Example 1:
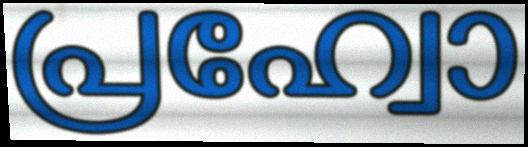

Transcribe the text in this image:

പ്രഹ്വോ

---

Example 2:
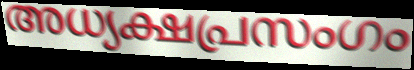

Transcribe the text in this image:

അധ്യക്ഷപ്രസംഗം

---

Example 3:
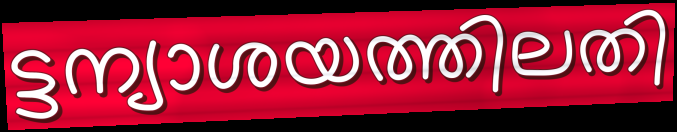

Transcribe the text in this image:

ട്ടന്യാശയത്തിലതി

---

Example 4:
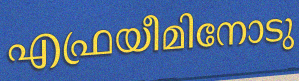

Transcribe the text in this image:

എഫ്രയീമിനോടു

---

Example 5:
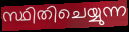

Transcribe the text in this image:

സ്ഥിതിചെയ്യുന്ന